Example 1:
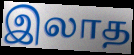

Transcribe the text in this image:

இலாத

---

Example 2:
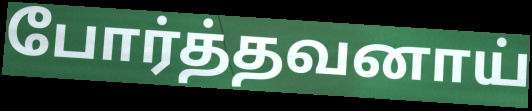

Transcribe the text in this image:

போர்த்தவனாய்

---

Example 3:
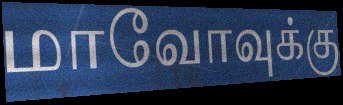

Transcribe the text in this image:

மாவோவுக்கு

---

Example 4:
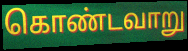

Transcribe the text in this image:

கொண்டவாறு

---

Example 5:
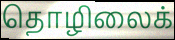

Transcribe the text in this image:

தொழிலைக்